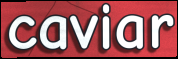
caviar